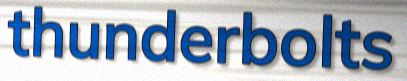
thunderbolts